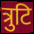
त्रुटि